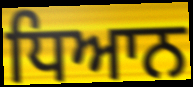
ਧਿਆਨ